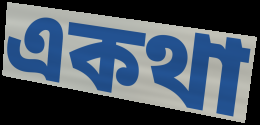
একথা